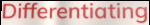
Differentiating